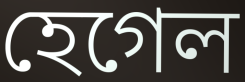
হেগেল